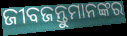
ଜୀବଜନ୍ତୁମାନଙ୍କର